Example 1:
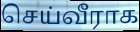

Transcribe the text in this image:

செய்வீராக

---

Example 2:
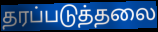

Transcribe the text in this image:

தரப்படுத்தலை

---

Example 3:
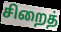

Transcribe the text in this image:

சிறைத்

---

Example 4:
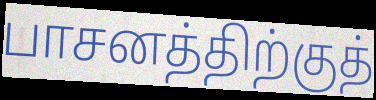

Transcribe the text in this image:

பாசனத்திற்குத்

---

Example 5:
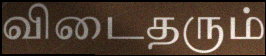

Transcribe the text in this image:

விடைதரும்